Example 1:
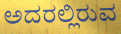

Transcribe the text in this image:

ಅದರಲ್ಲಿರುವ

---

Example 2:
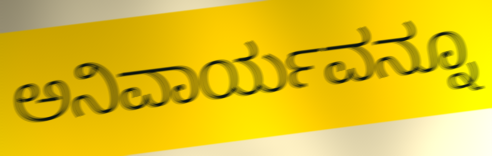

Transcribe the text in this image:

ಅನಿವಾರ್ಯವನ್ನೂ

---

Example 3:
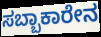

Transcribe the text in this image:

ಸಬ್ಬಾಕಾರೇನ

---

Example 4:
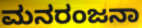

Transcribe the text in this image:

ಮನರಂಜನಾ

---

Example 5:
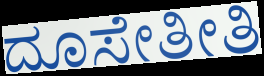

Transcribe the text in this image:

ದೂಸೇತೀತಿ